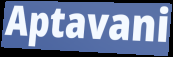
Aptavani